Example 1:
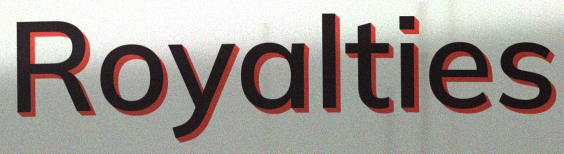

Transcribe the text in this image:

Royalties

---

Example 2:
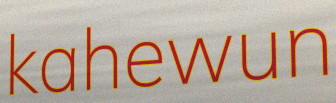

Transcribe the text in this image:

kahewun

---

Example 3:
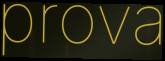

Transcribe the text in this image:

prova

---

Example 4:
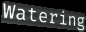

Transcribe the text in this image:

Watering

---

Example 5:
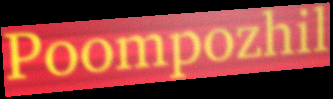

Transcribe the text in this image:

Poompozhil